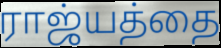
ராஜ்யத்தை